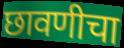
छावणीचा